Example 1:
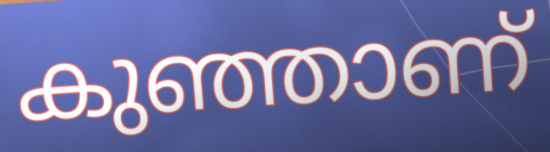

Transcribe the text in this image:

കുഞ്ഞാണ്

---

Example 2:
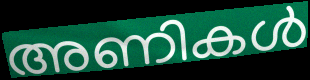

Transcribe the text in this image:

അണികൾ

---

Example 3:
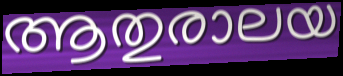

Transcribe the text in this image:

ആതുരാലയ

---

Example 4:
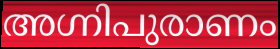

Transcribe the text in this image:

അഗ്നിപുരാണം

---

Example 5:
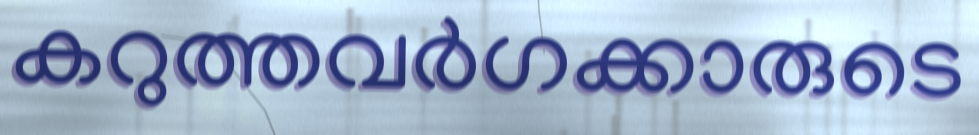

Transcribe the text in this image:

കറുത്തവർഗക്കാരുടെ